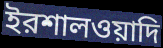
ইরশালওয়াদি